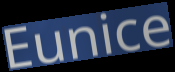
Eunice